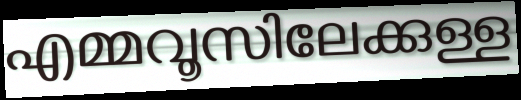
എമ്മവൂസിലേക്കുള്ള